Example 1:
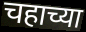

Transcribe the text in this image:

चहाच्या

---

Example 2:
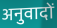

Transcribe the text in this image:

अनुवादों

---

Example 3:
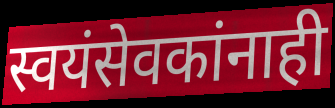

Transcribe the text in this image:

स्वयंसेवकांनाही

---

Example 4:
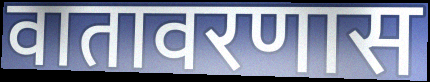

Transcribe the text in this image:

वातावरणास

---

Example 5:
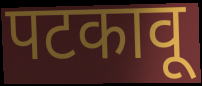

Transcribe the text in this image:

पटकावू